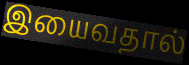
இயைவதால்